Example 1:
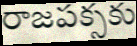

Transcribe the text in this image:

రాజపక్సకు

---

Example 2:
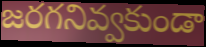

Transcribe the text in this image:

జరగనివ్వకుండా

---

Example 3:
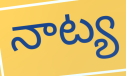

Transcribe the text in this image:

నాట్య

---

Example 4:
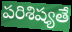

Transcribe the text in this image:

పరిశిష్యతే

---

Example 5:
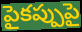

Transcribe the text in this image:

పైకప్పుపై